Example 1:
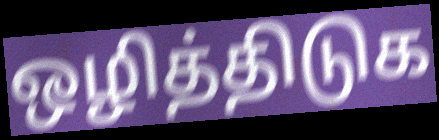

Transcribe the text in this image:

ஒழித்திடுக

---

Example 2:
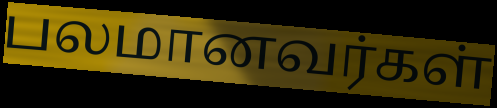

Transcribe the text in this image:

பலமானவர்கள்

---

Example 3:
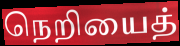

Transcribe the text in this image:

நெறியைத்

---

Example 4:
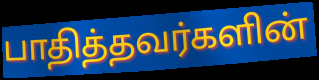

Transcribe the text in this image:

பாதித்தவர்களின்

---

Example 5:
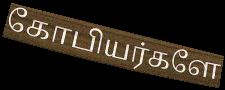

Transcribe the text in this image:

கோபியர்களே